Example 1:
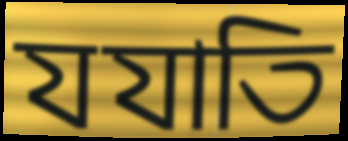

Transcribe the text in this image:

যযাতি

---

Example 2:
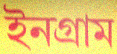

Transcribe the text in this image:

ইনগ্রাম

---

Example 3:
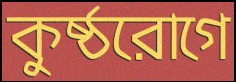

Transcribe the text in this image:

কুষ্ঠরোগে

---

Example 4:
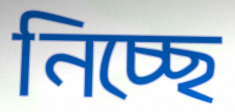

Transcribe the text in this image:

নিচ্ছে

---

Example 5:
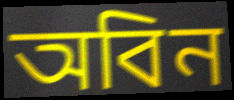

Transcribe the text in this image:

অবিন